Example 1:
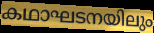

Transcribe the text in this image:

കഥാഘടനയിലും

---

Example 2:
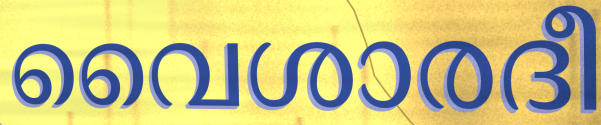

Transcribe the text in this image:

വൈശാരദീ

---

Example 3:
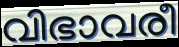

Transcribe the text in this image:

വിഭാവരീ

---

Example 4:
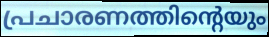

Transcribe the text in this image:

പ്രചാരണത്തിന്റെയും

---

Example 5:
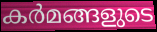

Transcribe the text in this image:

കർമങ്ങളുടെ